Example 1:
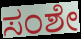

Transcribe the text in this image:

ಸಂಶೇ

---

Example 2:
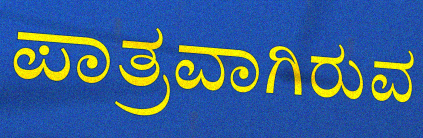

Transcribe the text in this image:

ಪಾತ್ರವಾಗಿರುವ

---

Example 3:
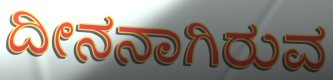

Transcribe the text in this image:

ದೀನನಾಗಿರುವ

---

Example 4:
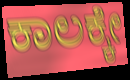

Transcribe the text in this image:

ಕಾಲಕ್ಕೇ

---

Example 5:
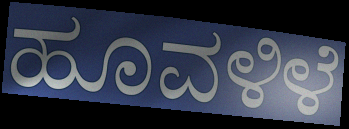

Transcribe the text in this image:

ಹೂವಳಿಳೆ